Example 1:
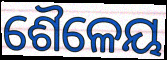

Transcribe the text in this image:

ଶୈଳେୟ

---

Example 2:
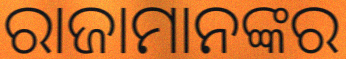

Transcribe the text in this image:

ରାଜାମାନଙ୍କର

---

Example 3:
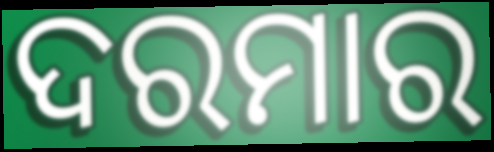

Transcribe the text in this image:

ଦରମାର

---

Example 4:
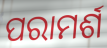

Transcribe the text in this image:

ପରାମର୍ଶ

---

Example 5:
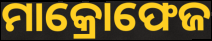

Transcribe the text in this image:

ମାକ୍ରୋଫେଜ